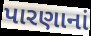
પારણાનાં